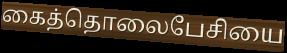
கைத்தொலைபேசியை